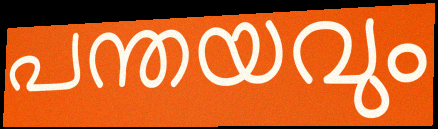
പന്തയവും